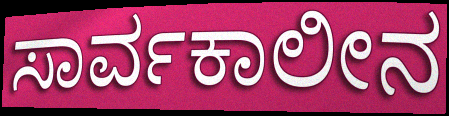
ಸಾರ್ವಕಾಲೀನ